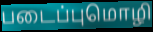
படைப்புமொழி